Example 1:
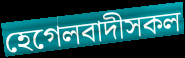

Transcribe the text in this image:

হেগেলবাদীসকল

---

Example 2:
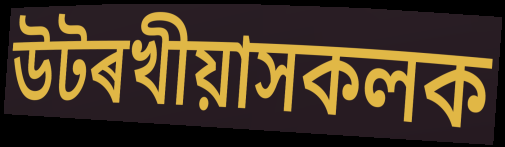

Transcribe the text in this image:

উটৰখীয়াসকলক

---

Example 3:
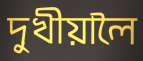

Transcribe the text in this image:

দুখীয়ালৈ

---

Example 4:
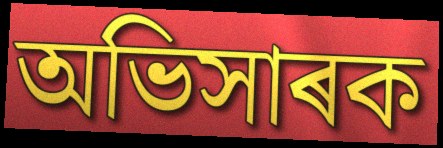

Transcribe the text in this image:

অভিসাৰক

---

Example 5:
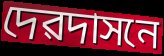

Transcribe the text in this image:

দেৱদাসনে